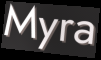
Myra